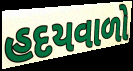
હદયવાળો